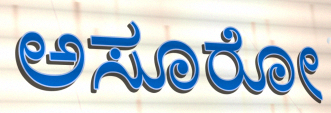
ಅಸೂರೋ